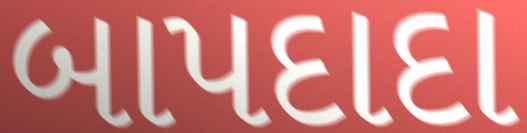
બાપદાદા